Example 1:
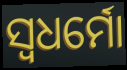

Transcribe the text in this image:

ସ୍ୱଧର୍ମୋ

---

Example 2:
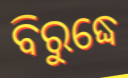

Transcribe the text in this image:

ବିରୁଦ୍ଧେ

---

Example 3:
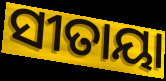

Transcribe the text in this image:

ସୀତାୟା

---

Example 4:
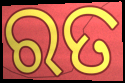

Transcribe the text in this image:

ରତ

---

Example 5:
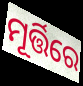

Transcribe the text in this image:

ମୂର୍ତ୍ତିରେ